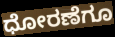
ಧೋರಣೆಗೂ